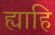
ह्याहि